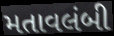
મતાવલંબી